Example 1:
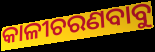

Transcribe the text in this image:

କାଳୀଚରଣବାବୁ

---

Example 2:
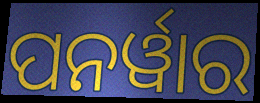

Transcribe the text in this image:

ପନର୍ୱାର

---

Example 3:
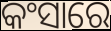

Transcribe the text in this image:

କଂସାରେ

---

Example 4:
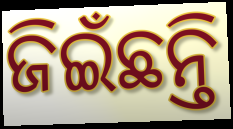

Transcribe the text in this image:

ଜିଇଁଛନ୍ତି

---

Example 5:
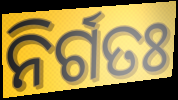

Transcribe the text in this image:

ନିର୍ଗତଃ